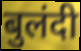
बुलंदी